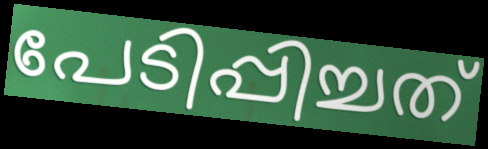
പേടിപ്പിച്ചത്